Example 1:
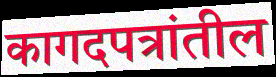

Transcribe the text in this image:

कागदपत्रांतील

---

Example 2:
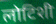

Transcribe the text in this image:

लोटिशी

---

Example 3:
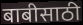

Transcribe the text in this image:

बाबीसाठी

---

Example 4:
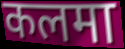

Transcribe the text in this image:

कलमा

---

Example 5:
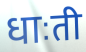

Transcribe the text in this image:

धाःती